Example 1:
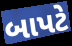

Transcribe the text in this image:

બાપટે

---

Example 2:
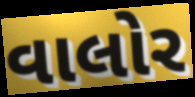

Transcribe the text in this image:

વાલોર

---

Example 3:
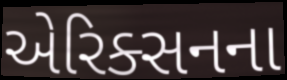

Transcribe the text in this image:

એરિક્સનના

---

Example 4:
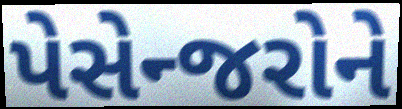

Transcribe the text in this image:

પેસેન્જરોને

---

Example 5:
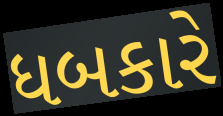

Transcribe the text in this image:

ધબકારે